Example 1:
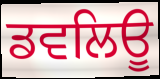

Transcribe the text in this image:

ਡਵਲਿਊ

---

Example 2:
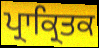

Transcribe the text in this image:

ਪ੍ਰਾਕ੍ਰਿਤਕ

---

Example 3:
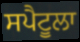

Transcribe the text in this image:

ਸਪੈਟੂਲਾ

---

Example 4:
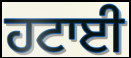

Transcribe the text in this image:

ਹਟਾਈ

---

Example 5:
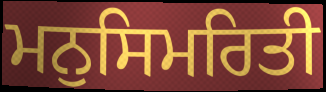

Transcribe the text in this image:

ਮਨੁਸਿਮਰਿਤੀ